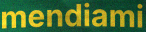
mendiami